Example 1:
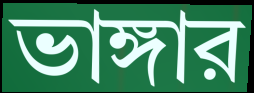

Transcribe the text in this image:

ভাঙ্গার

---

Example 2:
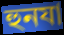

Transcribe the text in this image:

হুনযা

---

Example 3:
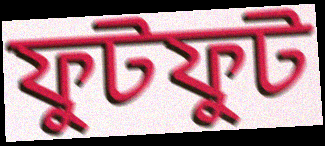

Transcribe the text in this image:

ফুটফুট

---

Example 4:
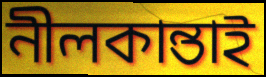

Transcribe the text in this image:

নীলকান্তাই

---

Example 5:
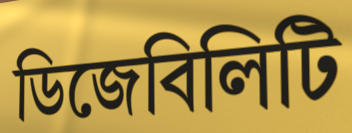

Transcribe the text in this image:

ডিজেবিলিটি